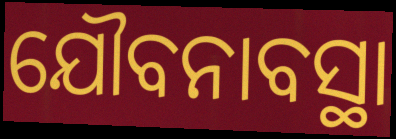
ଯୌବନାବସ୍ଥା